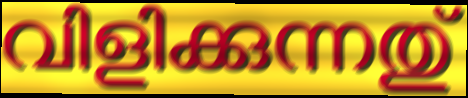
വിളിക്കുന്നതു്